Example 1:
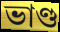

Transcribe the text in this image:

ভাণ্ড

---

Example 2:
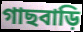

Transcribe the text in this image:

গাছবাড়ি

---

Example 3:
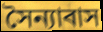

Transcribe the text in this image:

সৈন্যাবাস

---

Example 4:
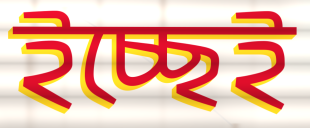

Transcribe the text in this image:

ইচ্ছেই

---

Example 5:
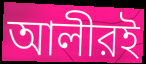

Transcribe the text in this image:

আলীরই